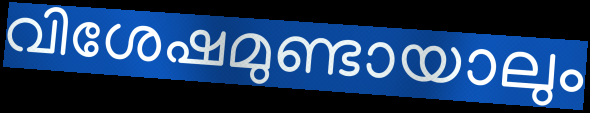
വിശേഷമുണ്ടായാലും